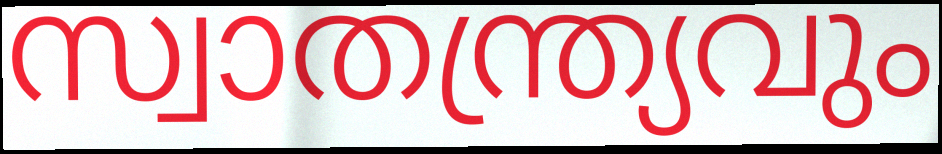
സ്വാതന്ത്ര്യവും